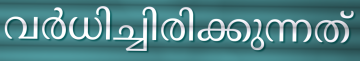
വർധിച്ചിരിക്കുന്നത്